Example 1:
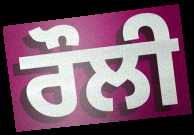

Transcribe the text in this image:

ਰੌਲੀ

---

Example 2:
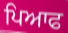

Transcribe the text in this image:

ਪਿਆਫ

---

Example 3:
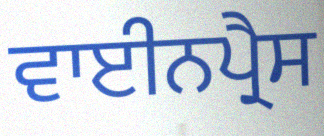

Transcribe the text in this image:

ਵਾਈਨਪ੍ਰੈਸ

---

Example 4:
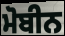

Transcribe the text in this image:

ਮੋਬੀਨ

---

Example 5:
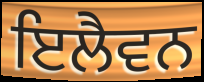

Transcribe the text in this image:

ਇਲੈਵਨ